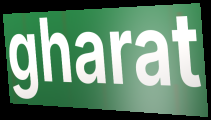
gharat